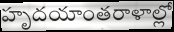
హృదయాంతరాళాల్లో